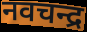
नवचन्द्र